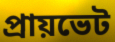
প্রায়ভেট